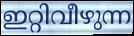
ഇറ്റിവീഴുന്ന